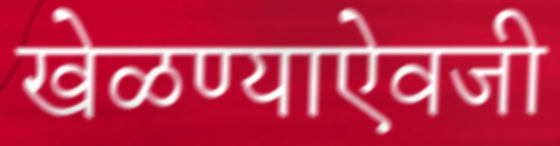
खेळण्याऐवजी